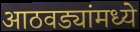
आठवड्यांमध्ये